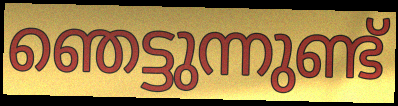
ഞെട്ടുന്നുണ്ട്